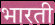
भारती